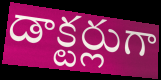
డాక్టర్లుగా